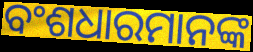
ବଂଶଧାରମାନଙ୍କ